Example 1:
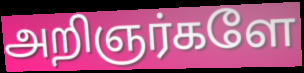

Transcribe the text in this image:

அறிஞர்களே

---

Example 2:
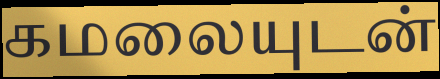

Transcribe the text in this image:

கமலையுடன்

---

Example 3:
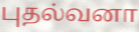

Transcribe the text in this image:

புதல்வனா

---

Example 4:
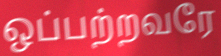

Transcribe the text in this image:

ஒப்பற்றவரே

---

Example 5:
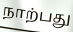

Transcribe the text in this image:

நாற்பது